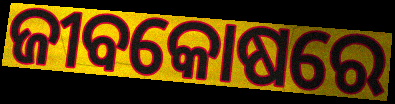
ଜୀବକୋଷରେ